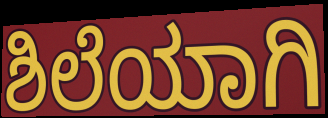
ಶಿಲೆಯಾಗಿ